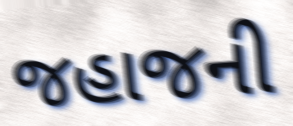
જહાજની